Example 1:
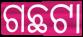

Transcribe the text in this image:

ଗଛଟା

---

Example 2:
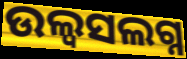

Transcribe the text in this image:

ଉଲ୍ୱସଲଗ୍ନ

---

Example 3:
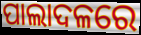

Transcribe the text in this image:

ପାଲାଦଳରେ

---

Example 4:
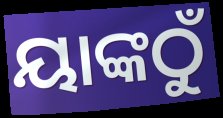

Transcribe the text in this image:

ୟାଙ୍କଠୁଁ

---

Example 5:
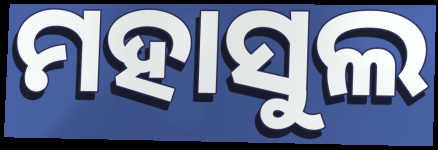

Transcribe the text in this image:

ମହାସୁଲ